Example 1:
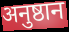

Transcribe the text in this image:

अनुष्ठान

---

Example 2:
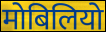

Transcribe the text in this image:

मोबिलियो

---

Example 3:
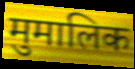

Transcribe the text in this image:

मुमालिक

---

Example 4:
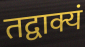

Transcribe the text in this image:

तद्वाक्यं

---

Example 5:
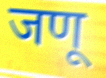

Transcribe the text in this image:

जणू